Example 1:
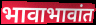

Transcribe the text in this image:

भावाभावांत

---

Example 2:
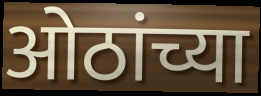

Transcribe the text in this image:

ओठांच्या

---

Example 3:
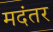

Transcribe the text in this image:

मदंतर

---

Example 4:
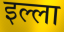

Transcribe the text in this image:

इल्ला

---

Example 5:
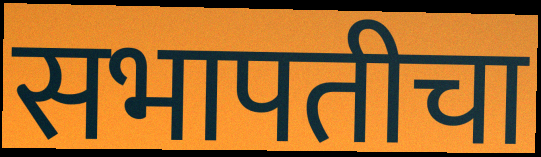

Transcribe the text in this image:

सभापतीचा